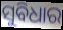
ସୁବିଧାର